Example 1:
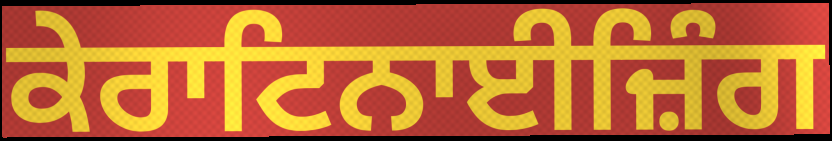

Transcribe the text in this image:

ਕੇਰਾਟਿਨਾਈਜ਼ਿੰਗ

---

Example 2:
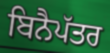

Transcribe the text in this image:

ਬਿਨੈਪੱਤਰ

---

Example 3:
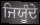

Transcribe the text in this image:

ਜਿਯੂੰਦੇ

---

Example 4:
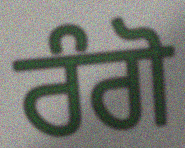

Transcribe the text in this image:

ਰੰਗੋ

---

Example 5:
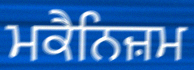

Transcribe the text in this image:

ਮਕੈਨਿਜ਼ਮ